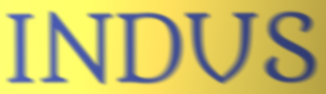
INDUS